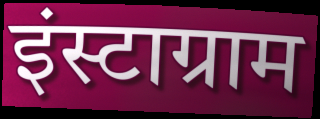
इंस्टाग्राम